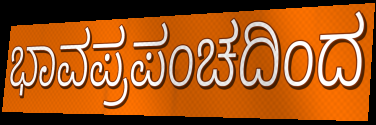
ಭಾವಪ್ರಪಂಚದಿಂದ